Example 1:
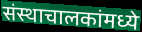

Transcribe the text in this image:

संस्थाचालकांमध्ये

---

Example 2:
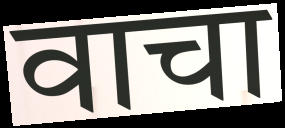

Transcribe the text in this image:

वाचा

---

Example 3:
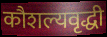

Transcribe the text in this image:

कौशल्यवृद्धी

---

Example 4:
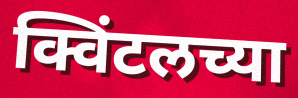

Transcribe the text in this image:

क्विंटलच्या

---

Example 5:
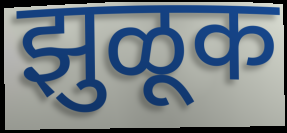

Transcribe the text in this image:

झुळूक